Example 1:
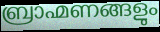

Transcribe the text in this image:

ബ്രാഹ്മണങ്ങളും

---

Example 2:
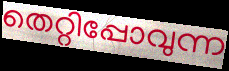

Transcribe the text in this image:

തെറ്റിപ്പോവുന്ന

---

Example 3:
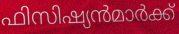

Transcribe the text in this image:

ഫിസിഷ്യൻമാർക്ക്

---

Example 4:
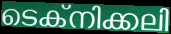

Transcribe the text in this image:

ടെക്‌നിക്കലി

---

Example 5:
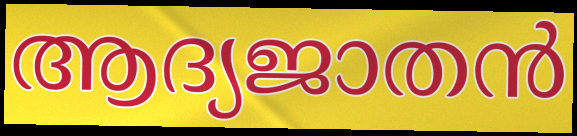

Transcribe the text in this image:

ആദ്യജാതൻ